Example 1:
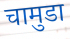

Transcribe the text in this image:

चामुडा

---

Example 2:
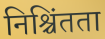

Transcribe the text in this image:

निश्चिंतता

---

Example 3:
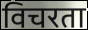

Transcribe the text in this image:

विचरता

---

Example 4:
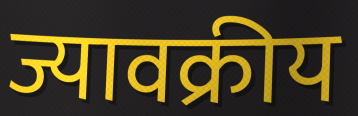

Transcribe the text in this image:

ज्यावक्रीय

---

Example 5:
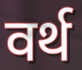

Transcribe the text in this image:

वर्थ